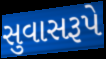
સુવાસરૂપે